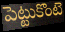
పెట్టుకొంటె